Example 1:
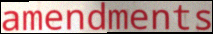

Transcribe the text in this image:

amendments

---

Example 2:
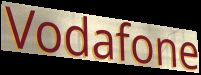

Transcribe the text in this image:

Vodafone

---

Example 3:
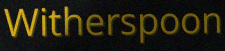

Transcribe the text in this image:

Witherspoon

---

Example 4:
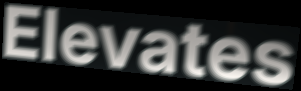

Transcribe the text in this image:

Elevates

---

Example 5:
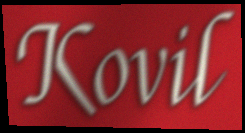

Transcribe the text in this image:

Kovil